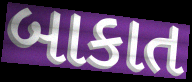
બાકાત